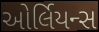
ઓર્લિયન્સ